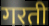
गरती